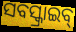
ସବସ୍କ୍ରାଇବ୍